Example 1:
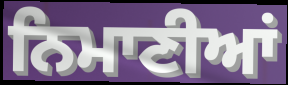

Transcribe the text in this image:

ਨਿਮਾਣੀਆਂ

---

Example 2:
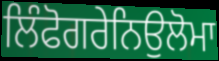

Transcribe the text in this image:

ਲਿੰਫੋਗਰੇਨਿਉਲੋਮਾ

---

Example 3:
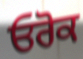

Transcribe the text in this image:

ਓਰੋਕ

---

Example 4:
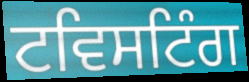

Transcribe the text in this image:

ਟਵਿਸਟਿੰਗ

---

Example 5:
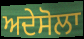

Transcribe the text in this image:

ਅਦੇਸੋਲਾ